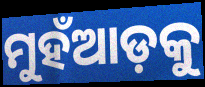
ମୁହଁଆଡ଼କୁ